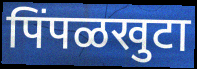
पिंपळखुटा